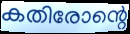
കതിരോന്റെ